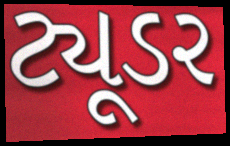
ટ્યૂડર